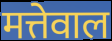
मत्तेवाल